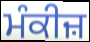
ਮੰਕੀਜ਼